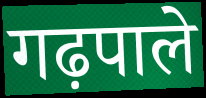
गढ़पाले